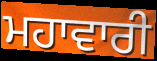
ਮਹਾਵਾਰੀ